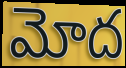
మోద